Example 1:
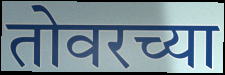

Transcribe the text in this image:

तोवरच्या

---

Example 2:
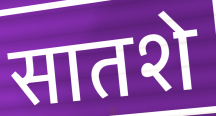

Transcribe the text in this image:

सातशे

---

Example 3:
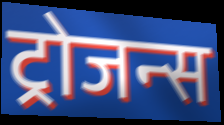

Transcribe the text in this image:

ट्रोजन्स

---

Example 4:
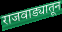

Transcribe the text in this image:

राजवाड्यातून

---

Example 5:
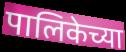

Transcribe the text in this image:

पालिकेच्या